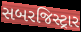
સબરજિસ્ટ્રાર